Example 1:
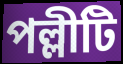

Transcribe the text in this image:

পল্লীটি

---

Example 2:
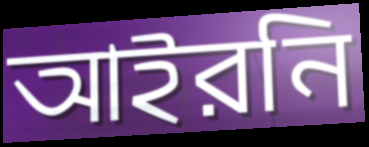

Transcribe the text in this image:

আইরনি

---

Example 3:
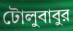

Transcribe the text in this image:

টোলুবাবুর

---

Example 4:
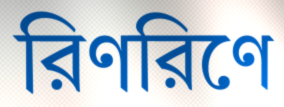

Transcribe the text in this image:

রিণরিণে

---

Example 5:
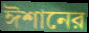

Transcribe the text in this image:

ঈশানের